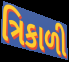
ત્રિકાળી